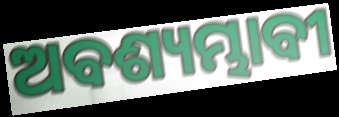
ଅବଶ୍ୟମ୍ଭାବୀ